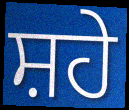
ਸ਼ਹੇ